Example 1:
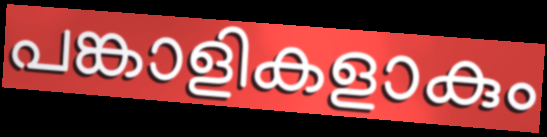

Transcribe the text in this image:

പങ്കാളികളാകും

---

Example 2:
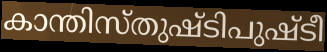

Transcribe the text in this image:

കാന്തിസ്തുഷ്ടിപുഷ്ടീ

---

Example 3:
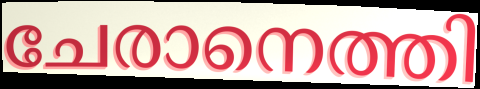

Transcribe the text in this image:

ചേരാനെത്തി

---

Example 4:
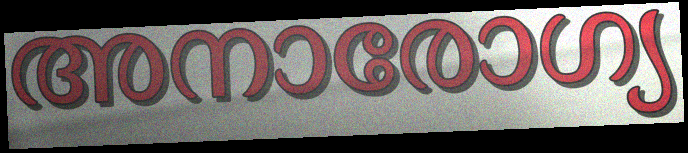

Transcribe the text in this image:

അനാരോഗ്യ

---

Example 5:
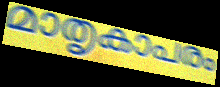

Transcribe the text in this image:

മാതൃകാപരം